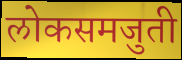
लोकसमजुती